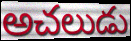
అచలుడు